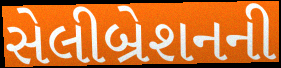
સેલીબ્રેશનની